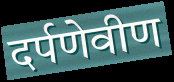
दर्पणेवीण